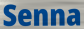
Senna